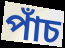
পাঁচ